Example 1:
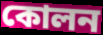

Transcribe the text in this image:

কোলন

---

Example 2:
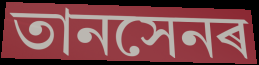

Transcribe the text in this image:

তানসেনৰ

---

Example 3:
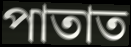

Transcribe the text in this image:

পাতাত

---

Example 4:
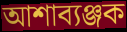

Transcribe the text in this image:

আশাব্যঞ্জক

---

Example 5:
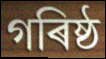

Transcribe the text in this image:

গৰিষ্ঠ